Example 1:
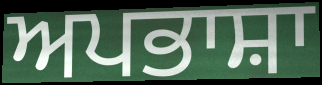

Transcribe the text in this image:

ਅਪਭਾਸ਼ਾ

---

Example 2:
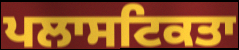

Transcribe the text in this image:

ਪਲਾਸਟਿਕਤਾ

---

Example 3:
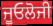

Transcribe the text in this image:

ਜੂਓਲੋਜੀ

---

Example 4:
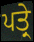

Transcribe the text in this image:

ਪਤ੍ਰੇ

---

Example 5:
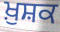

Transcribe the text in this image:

ਖ਼ੁਸ਼ਕ